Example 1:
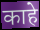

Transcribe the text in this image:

काहे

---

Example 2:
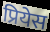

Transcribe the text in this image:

प्रियेस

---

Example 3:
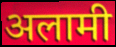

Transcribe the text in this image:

अलामी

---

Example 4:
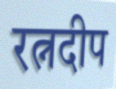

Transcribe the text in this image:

रत्नदीप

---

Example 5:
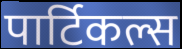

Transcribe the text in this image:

पार्टिकल्‍स